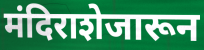
मंदिराशेजारून